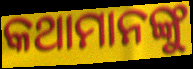
କଥାମାନଙ୍କୁ